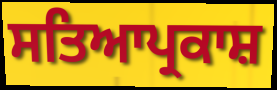
ਸਤਿਆਪ੍ਰਕਾਸ਼